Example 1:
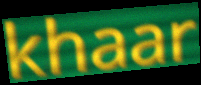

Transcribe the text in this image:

khaar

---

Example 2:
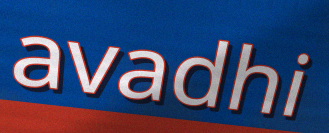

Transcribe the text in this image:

avadhi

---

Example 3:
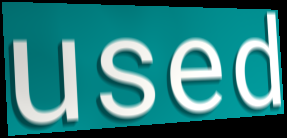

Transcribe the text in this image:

used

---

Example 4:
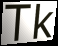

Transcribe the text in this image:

Tk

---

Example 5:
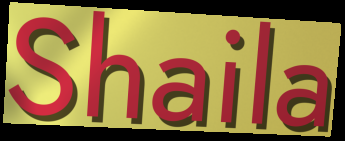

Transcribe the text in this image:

Shaila